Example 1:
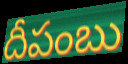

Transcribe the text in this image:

దీపంబు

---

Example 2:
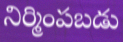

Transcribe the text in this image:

నిర్మింపబడు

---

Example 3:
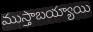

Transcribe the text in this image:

ముస్తాబయ్యాయి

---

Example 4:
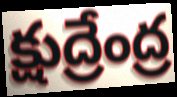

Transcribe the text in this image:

క్షుద్రేంద్ర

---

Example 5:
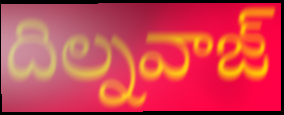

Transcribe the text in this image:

దిల్నవాజ్